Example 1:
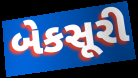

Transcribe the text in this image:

બેકસૂરી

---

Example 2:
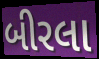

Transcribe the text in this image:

બીરલા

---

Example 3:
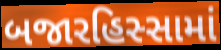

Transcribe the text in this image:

બજારહિસ્સામાં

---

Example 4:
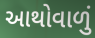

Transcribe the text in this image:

આથોવાળું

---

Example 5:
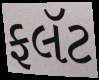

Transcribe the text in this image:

ફલૅટ